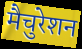
मैचुरेशन